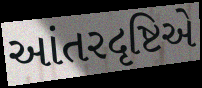
આંતરદૃષ્ટિએ